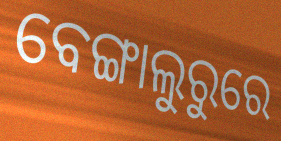
ବେଙ୍ଗାଲୁରୁରେ